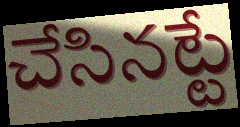
చేసినట్టే